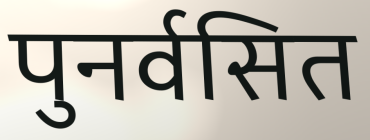
पुनर्वसित